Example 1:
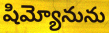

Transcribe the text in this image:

షిమ్యోనును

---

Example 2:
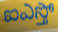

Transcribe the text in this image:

ఐఎస్తో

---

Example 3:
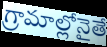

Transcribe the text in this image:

గ్రామాల్లోనైతే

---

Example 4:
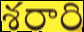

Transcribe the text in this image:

శరారి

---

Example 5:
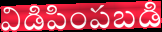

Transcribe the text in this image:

విడిపింపబడి